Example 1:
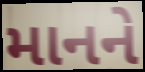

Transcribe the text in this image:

માનને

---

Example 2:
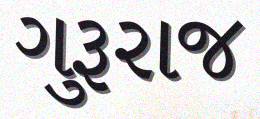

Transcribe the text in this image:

ગુરૂરાજ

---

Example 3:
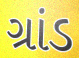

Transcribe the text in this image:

ગ્રાંડ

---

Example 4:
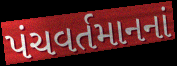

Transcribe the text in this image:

પંચવર્તમાનનાં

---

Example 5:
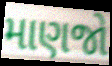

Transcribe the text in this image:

માણજો